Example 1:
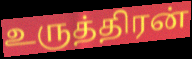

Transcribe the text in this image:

உருத்திரன்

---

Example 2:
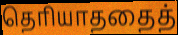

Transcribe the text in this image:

தெரியாததைத்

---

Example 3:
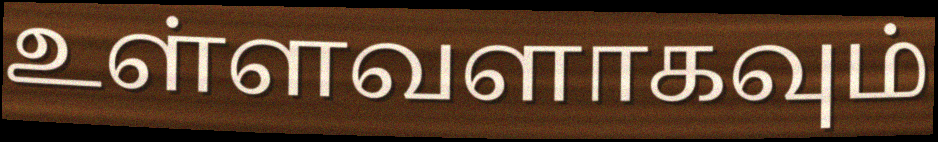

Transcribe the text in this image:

உள்ளவளாகவும்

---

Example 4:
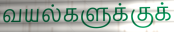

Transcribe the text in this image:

வயல்களுக்குக்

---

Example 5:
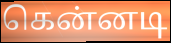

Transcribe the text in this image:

கென்னடி